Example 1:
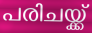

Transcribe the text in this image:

പരിചയ്ക്ക്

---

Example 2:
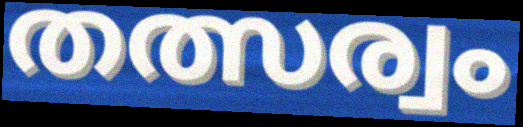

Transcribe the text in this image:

തത്സര്വം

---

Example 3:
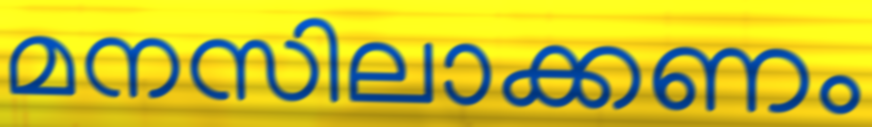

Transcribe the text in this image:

മനസിലാക്കണം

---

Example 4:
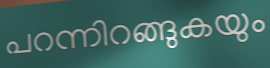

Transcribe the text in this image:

പറന്നിറങ്ങുകയും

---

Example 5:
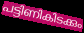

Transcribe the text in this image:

പട്ടിണികിടക്കും